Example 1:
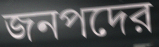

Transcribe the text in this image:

জনপদের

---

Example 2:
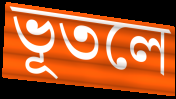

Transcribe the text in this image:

ভূতলে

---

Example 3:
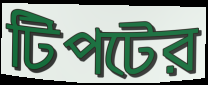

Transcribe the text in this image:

টিপটের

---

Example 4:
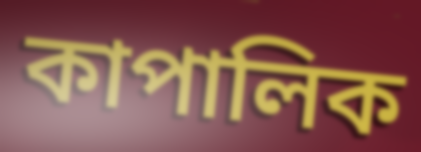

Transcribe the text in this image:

কাপালিক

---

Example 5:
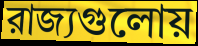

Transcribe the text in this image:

রাজ্যগুলোয়